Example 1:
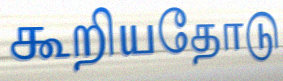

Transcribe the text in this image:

கூறியதோடு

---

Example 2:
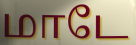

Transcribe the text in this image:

மாடே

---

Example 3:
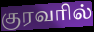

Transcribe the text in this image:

குரவரில்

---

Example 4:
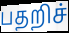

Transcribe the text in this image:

பதறிச்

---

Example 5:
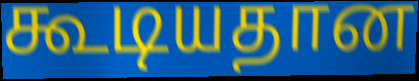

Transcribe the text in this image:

கூடியதான